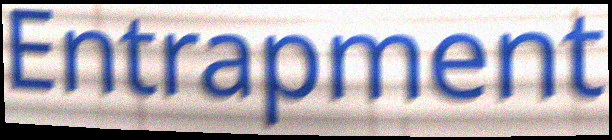
Entrapment